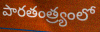
పారతంత్ర్యంలో